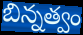
బిన్నత్వం